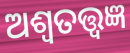
ଅଶ୍ୱତତ୍ତ୍ୱଜ୍ଞ